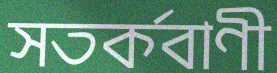
সতৰ্কবাণী